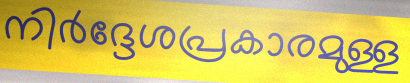
നിർദ്ദേശപ്രകാരമുള്ള